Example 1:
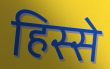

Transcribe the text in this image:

हिस्से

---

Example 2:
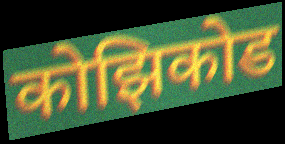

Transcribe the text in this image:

कोझिकोड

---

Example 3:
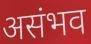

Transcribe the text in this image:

असंभव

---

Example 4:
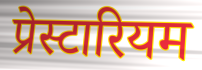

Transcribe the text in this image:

प्रेस्टारियम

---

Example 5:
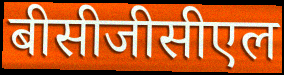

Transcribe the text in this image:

बीसीजीसीएल